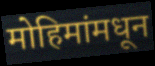
मोहिमांमधून